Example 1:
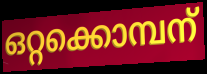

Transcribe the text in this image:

ഒറ്റക്കൊമ്പന്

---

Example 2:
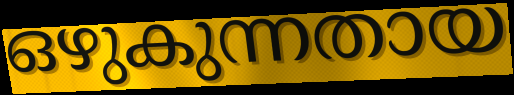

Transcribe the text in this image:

ഒഴുകുന്നതായ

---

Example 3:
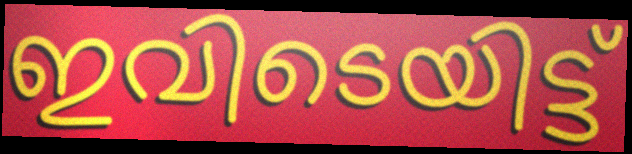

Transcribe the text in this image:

ഇവിടെയിട്ട്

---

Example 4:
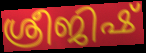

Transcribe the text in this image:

ശ്രീജിഷ്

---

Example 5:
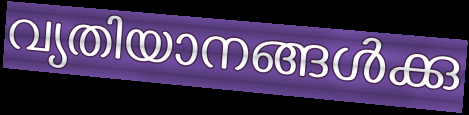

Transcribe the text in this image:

വ്യതിയാനങ്ങൾക്കു